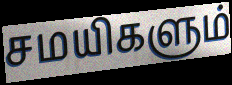
சமயிகளும்